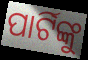
ପାର୍ଟିଙ୍କୁ